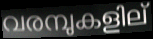
വരമ്പുകളില്